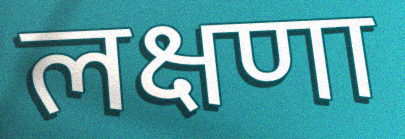
लक्षणा